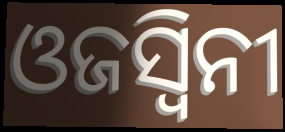
ଓଜସ୍ଵିନୀ